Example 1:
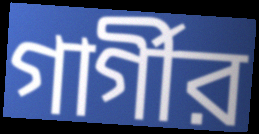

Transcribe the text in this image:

গার্গীর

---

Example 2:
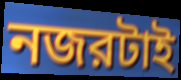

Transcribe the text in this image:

নজরটাই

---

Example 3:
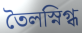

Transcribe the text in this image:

তৈলস্নিগ্ধ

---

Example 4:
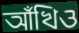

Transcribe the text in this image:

আঁখিও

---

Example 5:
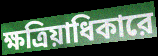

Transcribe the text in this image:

ক্ষত্রিয়াধিকারে